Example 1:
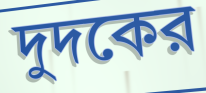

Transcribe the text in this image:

দুদকের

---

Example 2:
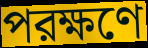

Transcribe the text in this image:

পরক্ষণে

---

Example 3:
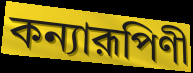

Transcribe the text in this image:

কন্যারূপিণী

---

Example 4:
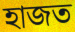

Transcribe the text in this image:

হাজত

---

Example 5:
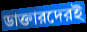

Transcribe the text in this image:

ডাক্তারদেরই